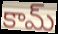
కామ్